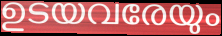
ഉടയവരേയും